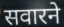
सवारने